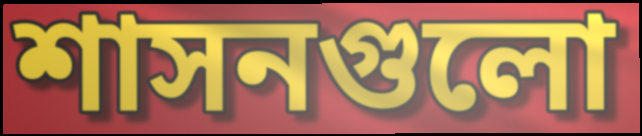
শাসনগুলো